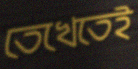
তেখেতেই